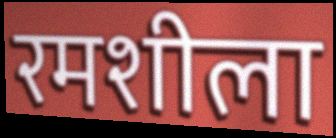
रमशीला